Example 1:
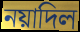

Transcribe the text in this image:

নয়াদিল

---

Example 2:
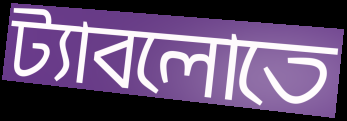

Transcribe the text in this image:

ট্যাবলোতে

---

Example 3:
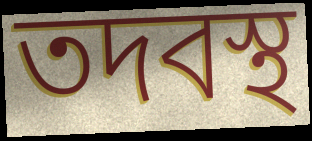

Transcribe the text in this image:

তদবস্থ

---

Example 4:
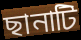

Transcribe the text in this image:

ছানাটি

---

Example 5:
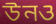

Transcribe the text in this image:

উনও